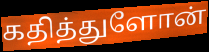
கதித்துளோன்